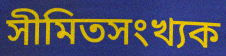
সীমিতসংখ্যক